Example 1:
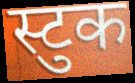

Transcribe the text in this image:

स्टुक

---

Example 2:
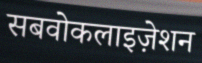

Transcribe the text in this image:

सबवोकलाइज़ेशन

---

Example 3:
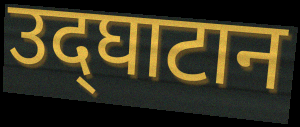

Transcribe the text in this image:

उद्घाटान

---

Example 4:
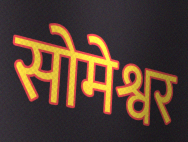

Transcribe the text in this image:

सोमेश्वर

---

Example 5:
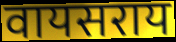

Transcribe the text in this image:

वायसराय